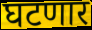
घटणार